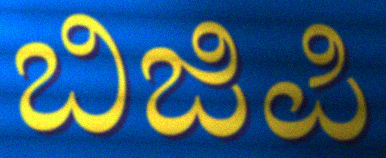
ಬಿಜಿಪಿ